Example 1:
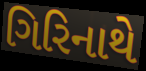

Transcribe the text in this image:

ગિરિનાથે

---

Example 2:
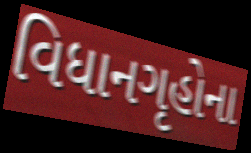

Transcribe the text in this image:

વિધાનગૃહોના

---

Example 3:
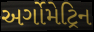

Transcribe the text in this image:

અર્ગોમેટ્રિન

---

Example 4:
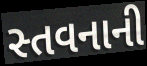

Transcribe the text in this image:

સ્તવનાની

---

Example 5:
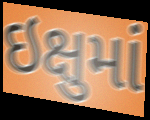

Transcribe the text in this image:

ઇક્ષુમાં